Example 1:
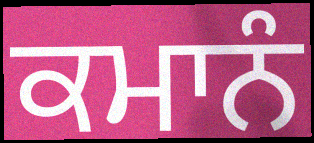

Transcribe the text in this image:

ਕਮਾਨੰ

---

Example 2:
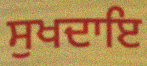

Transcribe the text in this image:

ਸੁਖਦਾਇ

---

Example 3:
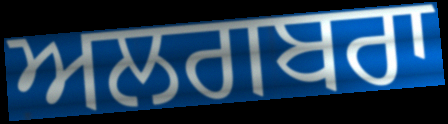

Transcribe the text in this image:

ਅਲਗਬਰਾ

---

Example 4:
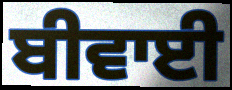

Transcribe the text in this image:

ਬੀਵਾਈ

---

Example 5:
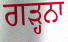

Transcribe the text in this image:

ਗੜ੍ਹਨਾ